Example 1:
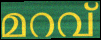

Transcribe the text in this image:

മറവ്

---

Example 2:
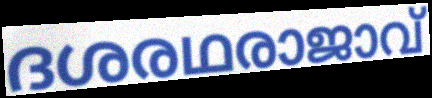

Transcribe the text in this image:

ദശരഥരാജാവ്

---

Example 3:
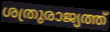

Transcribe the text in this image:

ശത്രുരാജ്യത്ത്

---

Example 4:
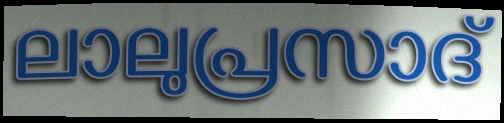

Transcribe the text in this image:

ലാലുപ്രസാദ്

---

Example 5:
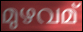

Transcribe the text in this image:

മുഴവമ്